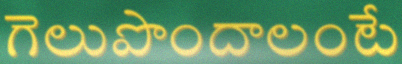
గెలుపొందాలంటే